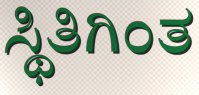
ಸ್ಥಿತಿಗಿಂತ